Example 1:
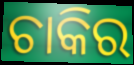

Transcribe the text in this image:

ଚାକିର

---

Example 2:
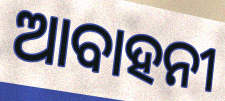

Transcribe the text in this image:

ଆବାହନୀ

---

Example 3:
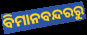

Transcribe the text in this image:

ବିମାନବନ୍ଦରରୁ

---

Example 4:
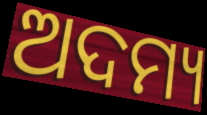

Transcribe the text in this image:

ଅଦମ୍ୟ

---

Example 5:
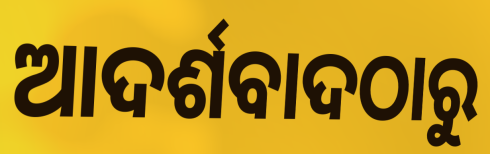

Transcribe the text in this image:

ଆଦର୍ଶବାଦଠାରୁ